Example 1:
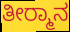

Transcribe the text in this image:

ತೀರ‍್ಮಾನ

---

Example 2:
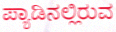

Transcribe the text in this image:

ಪ್ಯಾಡಿನಲ್ಲಿರುವ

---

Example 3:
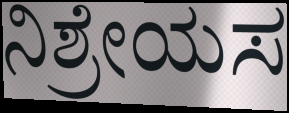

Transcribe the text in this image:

ನಿಶ್ರೇಯಸ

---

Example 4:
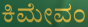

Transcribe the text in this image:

ಕಿಮೇವಂ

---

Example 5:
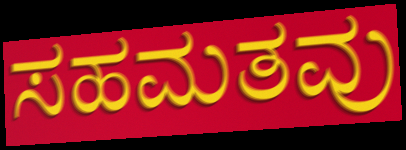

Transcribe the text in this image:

ಸಹಮತವು